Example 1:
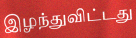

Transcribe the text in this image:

இழந்துவிட்டது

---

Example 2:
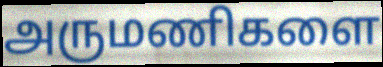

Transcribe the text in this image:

அருமணிகளை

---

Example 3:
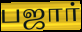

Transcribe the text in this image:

பஜார்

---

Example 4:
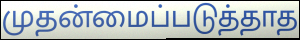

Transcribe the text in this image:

முதன்மைப்படுத்தாத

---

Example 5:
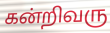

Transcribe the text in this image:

கன்றிவரு